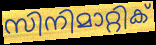
സിനിമാറ്റിക്